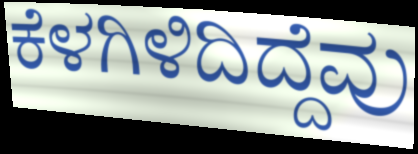
ಕೆಳಗಿಳಿದಿದ್ದೆವು